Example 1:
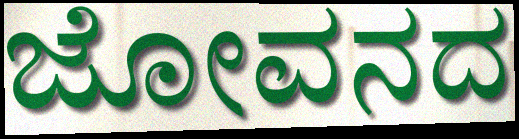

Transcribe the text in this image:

ಜೋವನದ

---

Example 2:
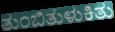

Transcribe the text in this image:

ತುಂಬಿತುಳುಕಿತು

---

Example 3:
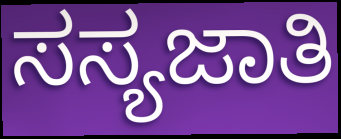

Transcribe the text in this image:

ಸಸ್ಯಜಾತಿ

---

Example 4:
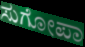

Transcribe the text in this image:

ಸುಗೋಪಾ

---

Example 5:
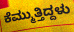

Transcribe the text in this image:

ಕೆಮ್ಮುತ್ತಿದ್ದಳು